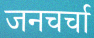
जनचर्चा